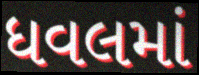
ધવલમાં